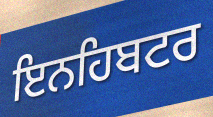
ਇਨਹਿਬਟਰ